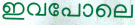
ഇവപോലെ